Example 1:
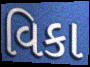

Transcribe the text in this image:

વિકા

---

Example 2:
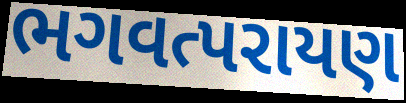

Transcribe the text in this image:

ભગવત્પરાયણ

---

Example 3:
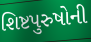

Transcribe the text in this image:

શિષ્ટપુરુષોની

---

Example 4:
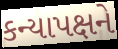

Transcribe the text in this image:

કન્યાપક્ષને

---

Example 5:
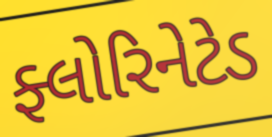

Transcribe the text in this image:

ફ્લોરિનેટેડ